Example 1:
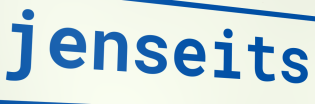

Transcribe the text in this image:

jenseits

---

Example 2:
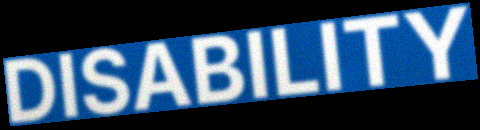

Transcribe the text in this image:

DISABILITY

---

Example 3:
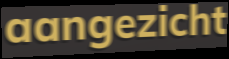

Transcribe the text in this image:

aangezicht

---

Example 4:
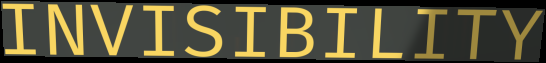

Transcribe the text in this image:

INVISIBILITY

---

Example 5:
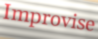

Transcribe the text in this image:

Improvise